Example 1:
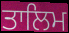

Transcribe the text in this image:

ਤਾਲਿਮ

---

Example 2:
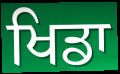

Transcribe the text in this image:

ਖਿਡਾ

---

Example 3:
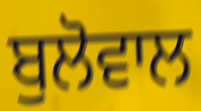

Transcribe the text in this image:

ਬੁਲੋਵਾਲ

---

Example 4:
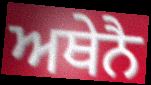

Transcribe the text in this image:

ਅਥੇਨੈ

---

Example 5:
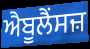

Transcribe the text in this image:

ਐਬੂਲੈਂਸਜ਼